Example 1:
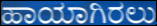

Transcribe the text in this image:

ಹಾಯಾಗಿರಲು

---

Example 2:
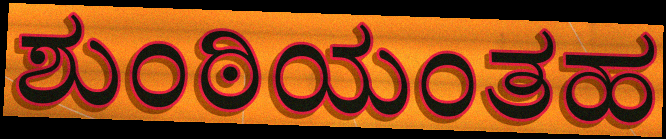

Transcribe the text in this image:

ಶುಂಠಿಯಂತಹ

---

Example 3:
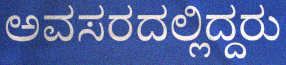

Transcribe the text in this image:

ಅವಸರದಲ್ಲಿದ್ದರು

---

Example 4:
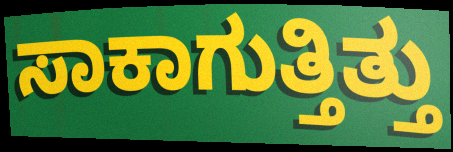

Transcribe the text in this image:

ಸಾಕಾಗುತ್ತಿತ್ತು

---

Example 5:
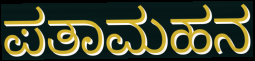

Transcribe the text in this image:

ಪತಾಮಹನ